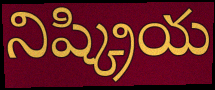
నిష్క్రియ